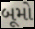
બૂમો